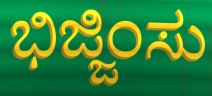
ಭಿಜ್ಜಿಂಸು